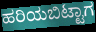
ಹರಿಯಬಿಟ್ಟಾಗ